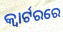
କ୍ବାର୍ଟରରେ